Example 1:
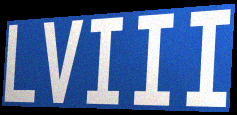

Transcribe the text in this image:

LVIII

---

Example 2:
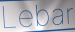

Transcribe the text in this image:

Lebar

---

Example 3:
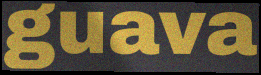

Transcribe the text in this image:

guava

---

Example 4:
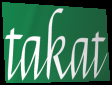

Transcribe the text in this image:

takat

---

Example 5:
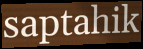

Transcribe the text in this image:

saptahik